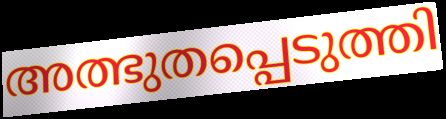
അത്ഭുതപ്പെടുത്തി